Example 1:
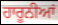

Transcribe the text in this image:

ਹਾਰੂਨੀਆਂ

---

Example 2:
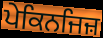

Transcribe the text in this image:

ਪੇਕਿਨਜਿਜ਼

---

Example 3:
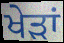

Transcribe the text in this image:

ਖੇੜਾਂ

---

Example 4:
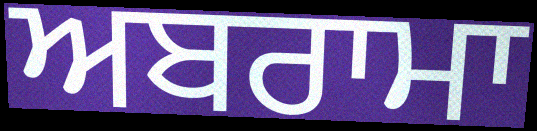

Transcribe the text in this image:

ਅਬਰਾਮਾ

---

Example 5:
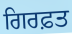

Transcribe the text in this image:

ਗਿਰਫ਼ਤ